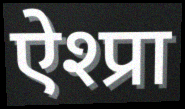
ऐश्प्रा